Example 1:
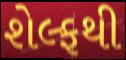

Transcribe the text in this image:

શેલ્ફથી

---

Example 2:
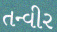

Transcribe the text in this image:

તન્વીર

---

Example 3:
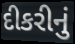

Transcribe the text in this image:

દીકરીનું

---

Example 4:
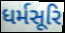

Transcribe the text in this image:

ધર્મસૂરિ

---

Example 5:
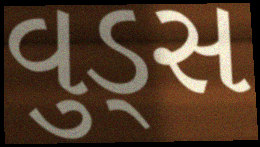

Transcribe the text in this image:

વુડ્સ